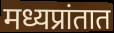
मध्यप्रांतात